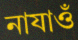
নাযাওঁ